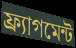
ফ্র্যাগমেন্ট